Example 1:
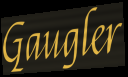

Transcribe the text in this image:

Gaugler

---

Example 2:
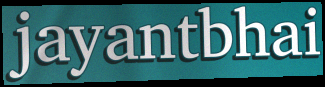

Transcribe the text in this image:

jayantbhai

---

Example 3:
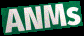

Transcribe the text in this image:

ANMs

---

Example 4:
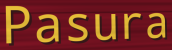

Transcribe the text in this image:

Pasura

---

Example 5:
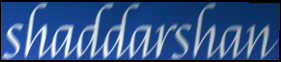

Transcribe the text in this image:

shaddarshan